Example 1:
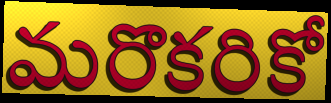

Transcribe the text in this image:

మరొకరికో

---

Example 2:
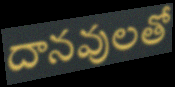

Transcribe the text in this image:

దానవులతో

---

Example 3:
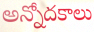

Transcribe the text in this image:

అన్నోదకాలు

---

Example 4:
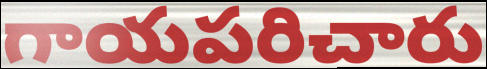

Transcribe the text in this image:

గాయపరిచారు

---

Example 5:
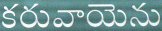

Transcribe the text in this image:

కరువాయెను